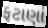
ફટાણાં